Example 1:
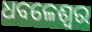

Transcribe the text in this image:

ଧବଳେଶ୍ଵର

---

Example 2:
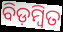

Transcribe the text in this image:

ବିଡ଼ମ୍ବିତ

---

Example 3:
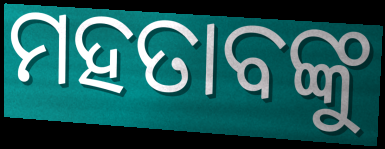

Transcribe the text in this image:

ମହତାବଙ୍କୁ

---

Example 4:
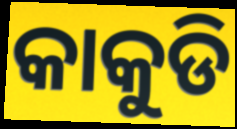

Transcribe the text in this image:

କାକୁଡି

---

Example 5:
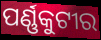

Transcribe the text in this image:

ପର୍ଣ୍ଣକୁଟୀର